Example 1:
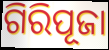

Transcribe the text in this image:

ଗିରିପୂଜା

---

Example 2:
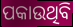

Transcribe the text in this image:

ପକାଉଥିବି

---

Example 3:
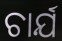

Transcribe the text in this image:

ଚାର୍ଯ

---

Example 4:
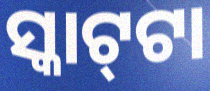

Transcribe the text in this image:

ସ୍କାଟ୍‌ଟା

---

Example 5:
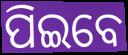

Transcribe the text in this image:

ପିଇବେ